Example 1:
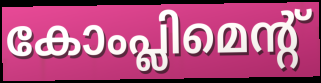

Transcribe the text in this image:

കോംപ്ലിമെന്റ്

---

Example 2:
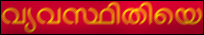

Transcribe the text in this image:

വ്യവസ്ഥിതിയെ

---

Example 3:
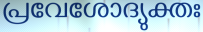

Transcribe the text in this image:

പ്രവേശോദ്യുക്തഃ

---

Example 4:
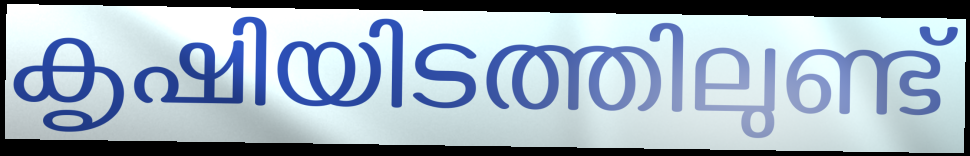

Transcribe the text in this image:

കൃഷിയിടത്തിലുണ്ട്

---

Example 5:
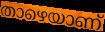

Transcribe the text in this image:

താഴെയാണ്